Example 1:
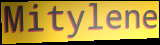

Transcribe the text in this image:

Mitylene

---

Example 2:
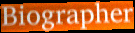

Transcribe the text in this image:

Biographer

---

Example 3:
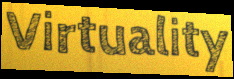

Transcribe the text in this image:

Virtuality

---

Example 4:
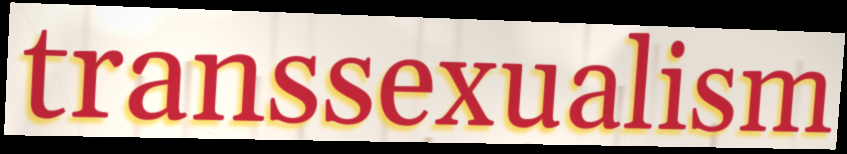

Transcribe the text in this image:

transsexualism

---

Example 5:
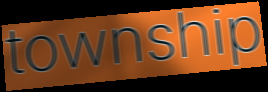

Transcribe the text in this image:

township